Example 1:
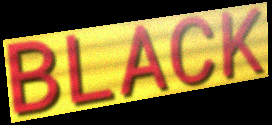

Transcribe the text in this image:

BLACK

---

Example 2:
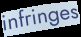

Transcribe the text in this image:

infringes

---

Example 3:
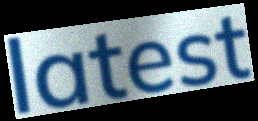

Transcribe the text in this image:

latest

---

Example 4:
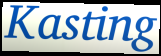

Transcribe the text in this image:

Kasting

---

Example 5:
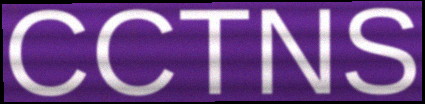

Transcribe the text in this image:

CCTNS